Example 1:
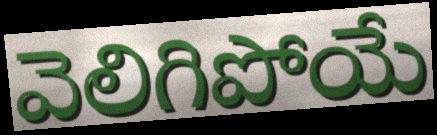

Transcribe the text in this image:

వెలిగిపోయే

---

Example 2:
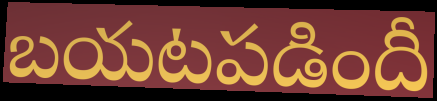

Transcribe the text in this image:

బయటపడిందీ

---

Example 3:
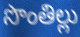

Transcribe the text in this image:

సొంతిల్లు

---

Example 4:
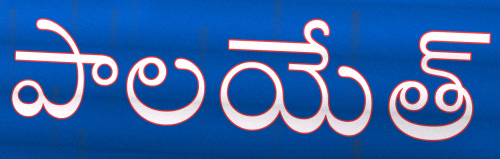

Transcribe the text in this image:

పాలయేత్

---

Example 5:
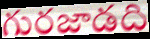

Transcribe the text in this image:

గురజాడది